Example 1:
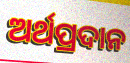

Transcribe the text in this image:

ଅର୍ଥପ୍ରଦାନ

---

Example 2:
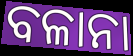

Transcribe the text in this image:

ବଳାନା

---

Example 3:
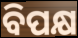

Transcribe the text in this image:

ବିପକ୍ଷ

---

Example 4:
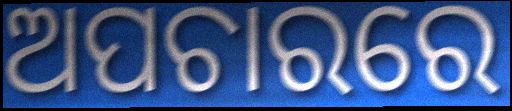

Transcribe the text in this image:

ଅପଚାରରେ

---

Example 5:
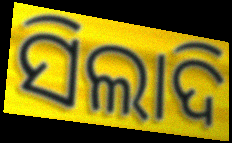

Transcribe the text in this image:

ସିଲାଦି